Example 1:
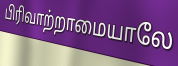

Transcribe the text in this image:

பிரிவாற்றாமையாலே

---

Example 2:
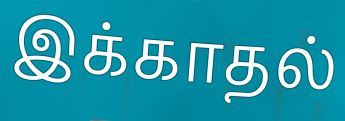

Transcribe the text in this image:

இக்காதல்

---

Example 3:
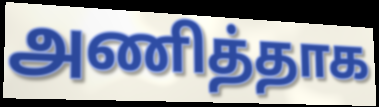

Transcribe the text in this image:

அணித்தாக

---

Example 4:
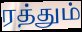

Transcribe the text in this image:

ரத்தும்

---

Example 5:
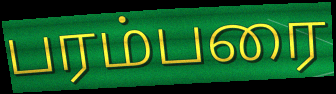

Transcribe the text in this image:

பரம்பரை